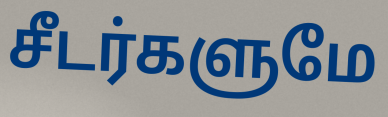
சீடர்களுமே